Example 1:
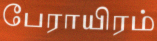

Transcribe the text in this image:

பேராயிரம்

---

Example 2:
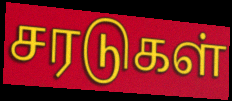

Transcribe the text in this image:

சரடுகள்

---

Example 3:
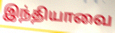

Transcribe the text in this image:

இந்தியாவை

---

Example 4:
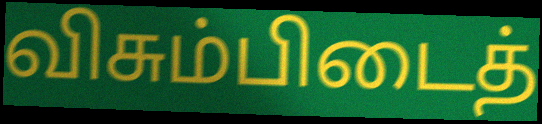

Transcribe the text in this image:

விசும்பிடைத்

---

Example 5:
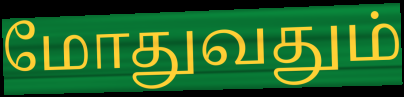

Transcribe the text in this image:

மோதுவதும்